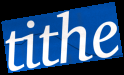
tithe